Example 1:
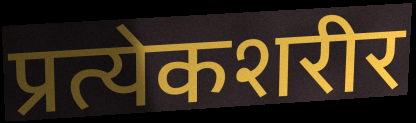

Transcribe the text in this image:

प्रत्येकशरीर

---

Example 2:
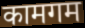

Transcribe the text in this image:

कामगम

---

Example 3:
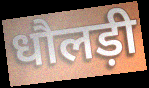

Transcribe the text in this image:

धौलड़ी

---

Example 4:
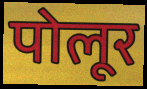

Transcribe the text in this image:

पोलूर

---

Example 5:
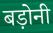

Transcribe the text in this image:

बड़ोनी